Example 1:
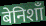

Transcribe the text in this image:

बेनिशाँ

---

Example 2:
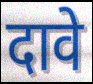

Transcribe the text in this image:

दावे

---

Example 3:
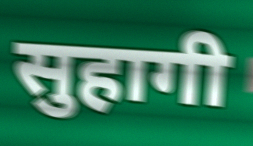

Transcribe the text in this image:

सुहागी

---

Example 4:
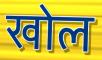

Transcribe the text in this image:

खोल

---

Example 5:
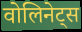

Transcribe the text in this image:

वोलिनेट्स